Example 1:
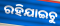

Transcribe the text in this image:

ରହିଯାଇଚୁ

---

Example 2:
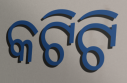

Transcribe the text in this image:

କଟିଟି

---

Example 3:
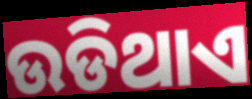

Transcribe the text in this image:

ଉଡିଥାଏ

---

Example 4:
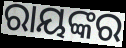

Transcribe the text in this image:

ରାୟଙ୍କର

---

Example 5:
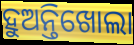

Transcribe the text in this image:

ହୁଅନ୍ତିଖୋଲା